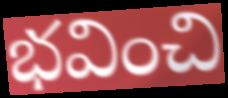
భవించి